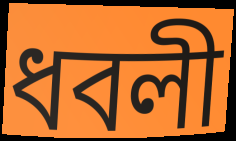
ধবলী